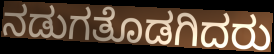
ನಡುಗತೊಡಗಿದರು